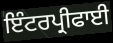
ਇੰਟਰਪ੍ਰੀਫਾਈ